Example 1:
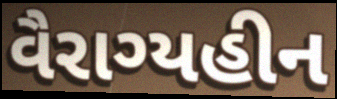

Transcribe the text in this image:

વૈરાગ્યહીન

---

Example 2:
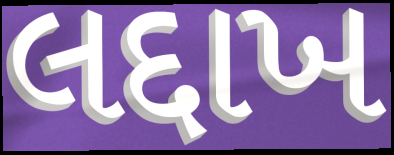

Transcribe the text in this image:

લદ્દાખ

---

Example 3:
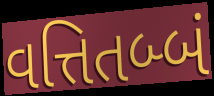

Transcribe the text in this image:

વત્તિતબ્બં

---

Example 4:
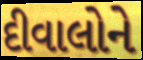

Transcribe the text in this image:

દીવાલોને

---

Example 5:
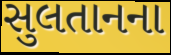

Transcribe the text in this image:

સુલતાનના